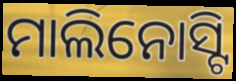
ମାଲିନୋସ୍ଟି